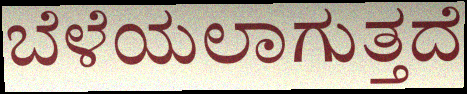
ಬೆಳೆಯಲಾಗುತ್ತದೆ